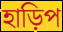
হাড়িপ